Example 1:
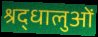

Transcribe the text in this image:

श्रद्धालुओं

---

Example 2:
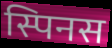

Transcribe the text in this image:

स्पिनस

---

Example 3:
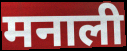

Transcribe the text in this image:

मनाली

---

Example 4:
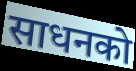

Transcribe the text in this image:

साधनको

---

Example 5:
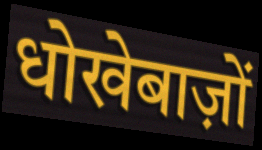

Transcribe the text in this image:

धोखेबाज़ों